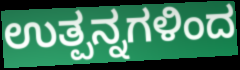
ಉತ್ಪನ್ನಗಳಿಂದ